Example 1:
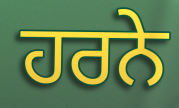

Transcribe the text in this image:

ਹਰਨੇ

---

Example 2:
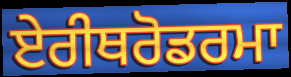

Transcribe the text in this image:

ਏਰੀਥਰੋਡਰਮਾ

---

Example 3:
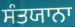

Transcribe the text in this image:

ਸੰਤਯਾਨਾ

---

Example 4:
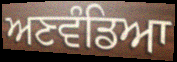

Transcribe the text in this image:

ਅਣਵੰਡਿਆ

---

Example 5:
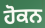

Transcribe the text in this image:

ਹੋਕਨ